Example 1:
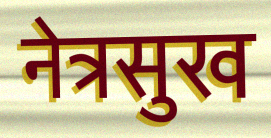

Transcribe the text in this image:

नेत्रसुख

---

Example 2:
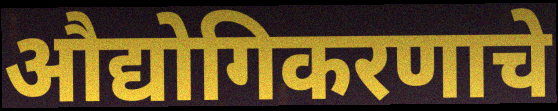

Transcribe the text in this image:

औद्योगिकरणाचे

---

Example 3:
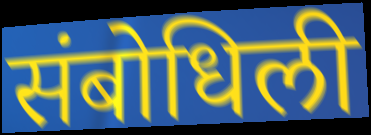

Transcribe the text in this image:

संबोधिली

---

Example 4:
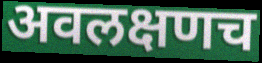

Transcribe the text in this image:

अवलक्षणच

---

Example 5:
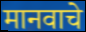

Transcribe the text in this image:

मानवाचे